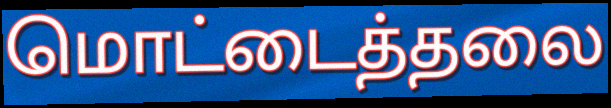
மொட்டைத்தலை